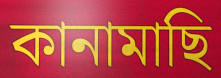
কানামাছি